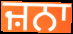
ਜ਼ਨਾ